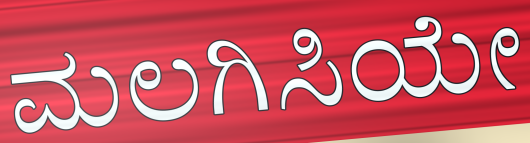
ಮಲಗಿಸಿಯೇ